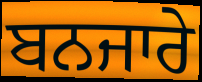
ਬਨਜਾਰੇ